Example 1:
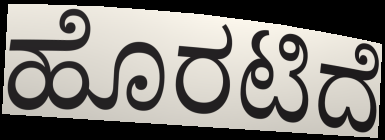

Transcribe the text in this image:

ಹೊರಟಿದೆ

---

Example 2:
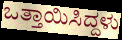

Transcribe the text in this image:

ಒತ್ತಾಯಿಸಿದ್ದಳು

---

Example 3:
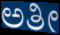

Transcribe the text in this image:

ಅತೀ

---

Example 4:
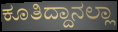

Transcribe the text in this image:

ಕೂತಿದ್ದಾನಲ್ಲಾ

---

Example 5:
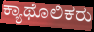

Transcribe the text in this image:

ಕ್ಯಾಥೊಲಿಕರು